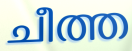
ചീത്ത